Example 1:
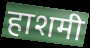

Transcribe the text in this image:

हाशमी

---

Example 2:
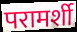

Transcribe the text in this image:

परामर्शी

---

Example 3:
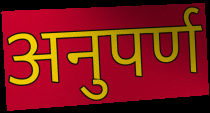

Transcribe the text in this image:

अनुपर्ण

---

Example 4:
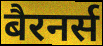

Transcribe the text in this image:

बैरनर्स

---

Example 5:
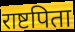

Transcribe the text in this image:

राष्टपिता